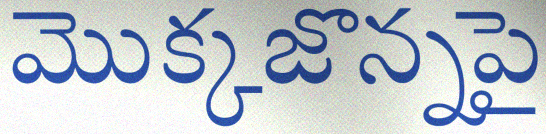
మొక్కజొన్నపై